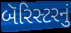
બૅરિસ્ટરનું